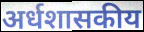
अर्धशासकीय